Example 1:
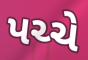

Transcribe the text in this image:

પચ્ચે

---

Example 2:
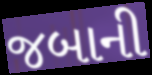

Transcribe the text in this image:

જબાની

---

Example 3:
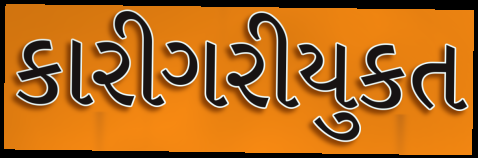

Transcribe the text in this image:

કારીગરીયુકત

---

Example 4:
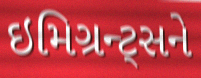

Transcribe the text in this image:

ઇમિગ્રન્ટ્સને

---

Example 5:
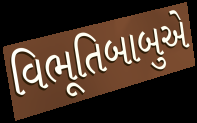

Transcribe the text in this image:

વિભૂતિબાબુએ